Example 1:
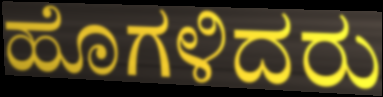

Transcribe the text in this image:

ಹೊಗಳಿದರು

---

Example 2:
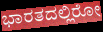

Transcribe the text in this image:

ಭಾರತದಲ್ಲಿರೋ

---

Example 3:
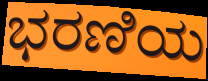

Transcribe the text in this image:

ಭರಣಿಯ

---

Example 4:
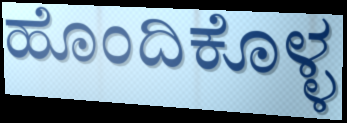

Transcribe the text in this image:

ಹೊಂದಿಕೊಳ್ಳ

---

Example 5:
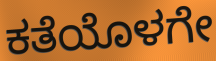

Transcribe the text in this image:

ಕತೆಯೊಳಗೇ